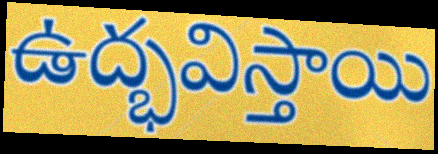
ఉద్భవిస్తాయి